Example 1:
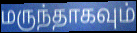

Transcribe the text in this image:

மருந்தாகவும்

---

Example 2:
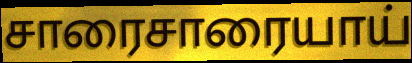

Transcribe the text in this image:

சாரைசாரையாய்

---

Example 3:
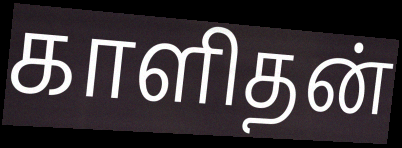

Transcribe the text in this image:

காளிதன்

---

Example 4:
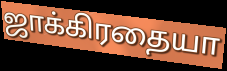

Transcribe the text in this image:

ஜாக்கிரதையா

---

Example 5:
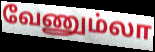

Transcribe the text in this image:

வேணும்லா